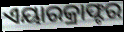
ଏୟାରକ୍ରାଫ୍ଟର